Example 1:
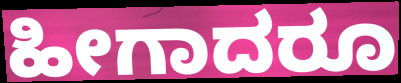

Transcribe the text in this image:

ಹೀಗಾದರೂ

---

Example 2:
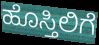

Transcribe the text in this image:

ಹೊಸ್ತಿಲಿಗೆ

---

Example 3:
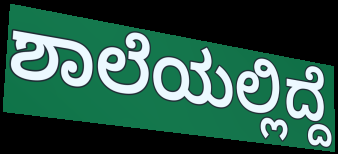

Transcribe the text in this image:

ಶಾಲೆಯಲ್ಲಿದ್ದೆ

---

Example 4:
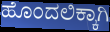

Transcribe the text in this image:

ಹೊಂದಲಿಕ್ಕಾಗಿ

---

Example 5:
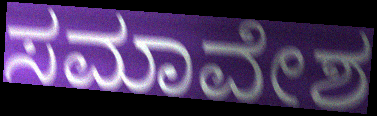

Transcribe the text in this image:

ಸಮಾವೇಶ